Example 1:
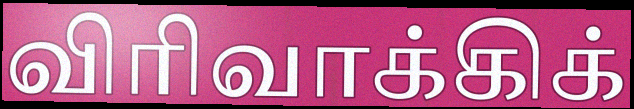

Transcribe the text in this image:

விரிவாக்கிக்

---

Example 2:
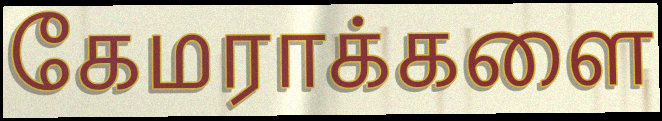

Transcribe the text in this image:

கேமராக்களை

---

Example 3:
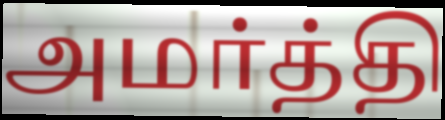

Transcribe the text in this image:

அமர்த்தி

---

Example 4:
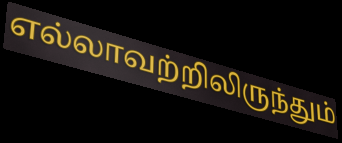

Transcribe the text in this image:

எல்லாவற்றிலிருந்தும்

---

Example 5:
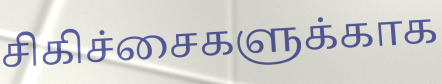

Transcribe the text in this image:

சிகிச்சைகளுக்காக